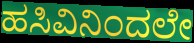
ಹಸಿವಿನಿಂದಲೇ